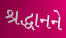
શ્રદ્ધાનને